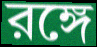
রঙ্গে